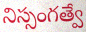
నిస్సంగత్వే